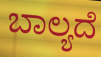
ಬಾಲ್ಯದೆ